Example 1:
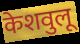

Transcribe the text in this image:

केशवुलू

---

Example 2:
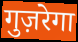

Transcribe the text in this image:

गुज़रेगा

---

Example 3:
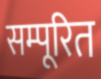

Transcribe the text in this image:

सम्पूरित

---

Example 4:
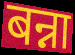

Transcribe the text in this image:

बन्ना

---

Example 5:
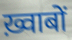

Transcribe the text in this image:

ख़्वाबों